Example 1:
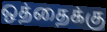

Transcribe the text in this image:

ஒத்தைக்கு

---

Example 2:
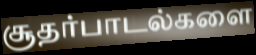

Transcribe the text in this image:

சூதர்பாடல்களை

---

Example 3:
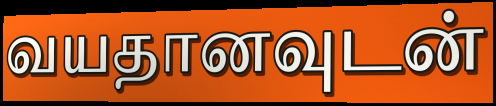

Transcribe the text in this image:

வயதானவுடன்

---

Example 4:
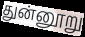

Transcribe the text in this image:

துன்னூறு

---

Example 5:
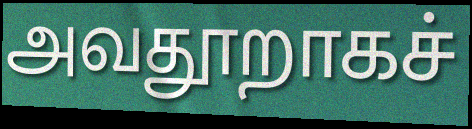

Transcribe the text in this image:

அவதூறாகச்